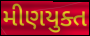
મીણયુક્ત